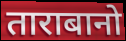
ताराबानो